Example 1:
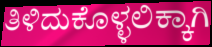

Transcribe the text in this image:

ತಿಳಿದುಕೊಳ್ಳಲಿಕ್ಕಾಗಿ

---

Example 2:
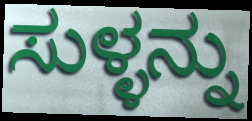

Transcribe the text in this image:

ಸುಳ್ಳನ್ನು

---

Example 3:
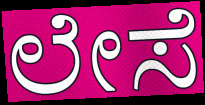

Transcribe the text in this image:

ಲೇಸೆ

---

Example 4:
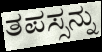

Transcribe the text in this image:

ತಪಸ್ಸನ್ನು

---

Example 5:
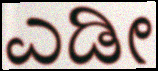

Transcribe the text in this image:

ಎಡೀ